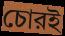
চোরই